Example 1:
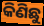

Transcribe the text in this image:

କିଣିଛୁ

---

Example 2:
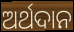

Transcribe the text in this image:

ଅର୍ଥଦାନ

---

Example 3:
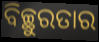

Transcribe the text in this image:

ବିଚ୍ଛୁରତାର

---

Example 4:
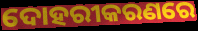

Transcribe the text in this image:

ଦୋହରୀକରଣରେ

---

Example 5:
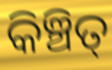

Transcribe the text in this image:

କିଞ୍ଚିତ୍